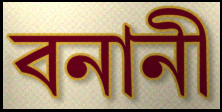
বনানী